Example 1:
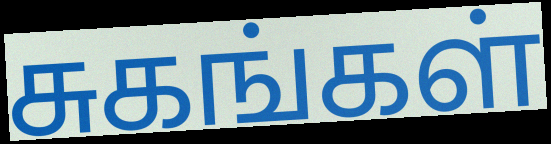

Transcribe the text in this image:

சுகங்கள்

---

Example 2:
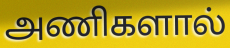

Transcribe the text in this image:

அணிகளால்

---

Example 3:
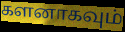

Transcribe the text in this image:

களனாகவும்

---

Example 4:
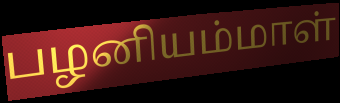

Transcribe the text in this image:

பழனியம்மாள்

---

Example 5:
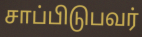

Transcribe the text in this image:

சாப்பிடுபவர்